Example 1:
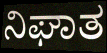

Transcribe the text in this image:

ನಿಘಾತ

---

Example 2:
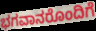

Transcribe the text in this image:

ಭಗವಾನರೊಂದಿಗೆ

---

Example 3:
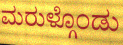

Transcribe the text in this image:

ಮರುಳ್ಗೊಂಡು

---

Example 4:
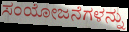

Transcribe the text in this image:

ಸಂಯೋಜನೆಗಳನ್ನು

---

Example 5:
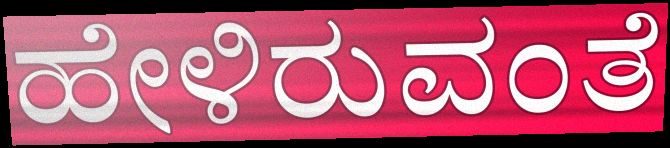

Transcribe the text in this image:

ಹೇಳಿರುವಂತೆ